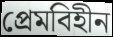
প্রেমবিহীন